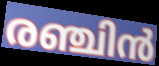
രഞ്ചിൻ